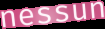
nessun